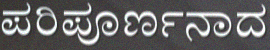
ಪರಿಪೂರ್ಣನಾದ